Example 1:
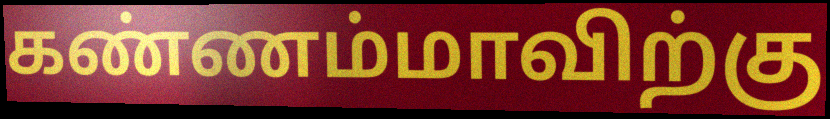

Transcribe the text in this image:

கண்ணம்மாவிற்கு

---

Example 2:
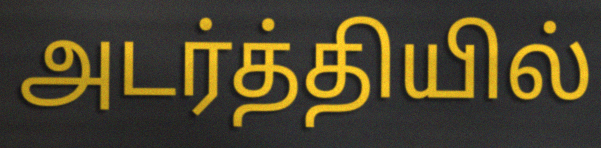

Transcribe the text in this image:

அடர்த்தியில்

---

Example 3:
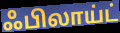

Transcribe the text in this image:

ஃபிலாய்ட்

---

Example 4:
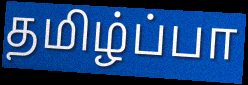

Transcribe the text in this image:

தமிழ்ப்பா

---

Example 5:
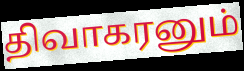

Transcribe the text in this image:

திவாகரனும்